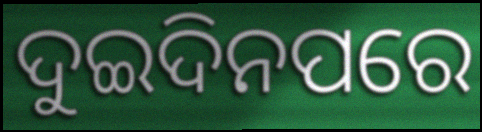
ଦୁଇଦିନପରେ